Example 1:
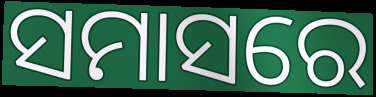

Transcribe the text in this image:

ସମାସରେ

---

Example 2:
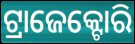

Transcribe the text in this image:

ଟ୍ରାଜେକ୍ଟୋରି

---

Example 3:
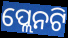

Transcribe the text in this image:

ପ୍ଲେନଟି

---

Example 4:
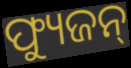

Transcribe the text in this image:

ଫ୍ୟୁଜନ୍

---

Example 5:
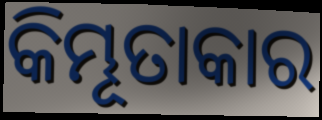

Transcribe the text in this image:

କିମ୍ଭୂତାକାର